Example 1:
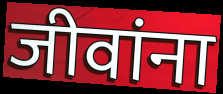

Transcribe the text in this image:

जीवांना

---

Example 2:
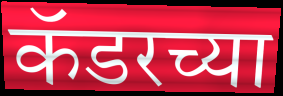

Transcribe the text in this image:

कॅडरच्या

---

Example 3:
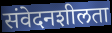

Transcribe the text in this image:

संवेदनशीलता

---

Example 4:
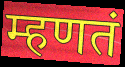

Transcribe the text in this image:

म्हणतं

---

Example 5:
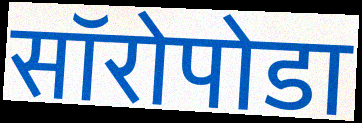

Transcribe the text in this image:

सॉरोपोडा